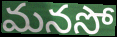
మనసో